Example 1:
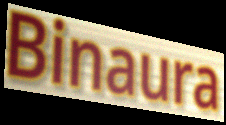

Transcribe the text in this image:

Binaura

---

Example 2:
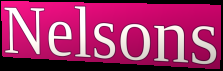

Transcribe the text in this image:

Nelsons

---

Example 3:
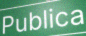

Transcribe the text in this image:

Publica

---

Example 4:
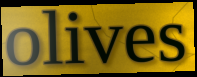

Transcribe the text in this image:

olives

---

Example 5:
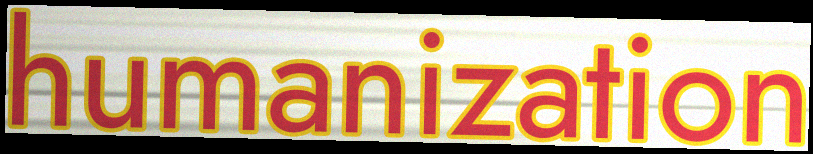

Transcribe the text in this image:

humanization